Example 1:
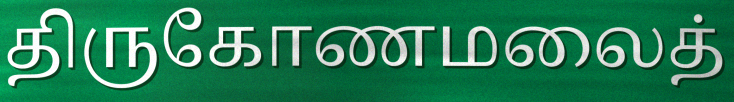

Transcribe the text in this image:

திருகோணமலைத்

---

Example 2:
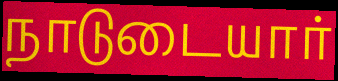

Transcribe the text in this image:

நாடுடையார்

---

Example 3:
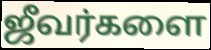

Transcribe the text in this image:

ஜீவர்களை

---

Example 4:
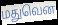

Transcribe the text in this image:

மதுவென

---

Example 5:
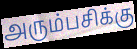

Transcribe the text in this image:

அரும்பசிக்கு